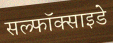
सल्फॉक्साइडे